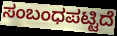
ಸಂಬಂಧಪಟ್ಟಿದೆ